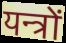
यन्त्रों